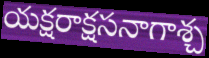
యక్షరాక్షసనాగాశ్చ